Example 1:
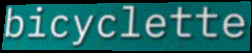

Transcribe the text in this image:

bicyclette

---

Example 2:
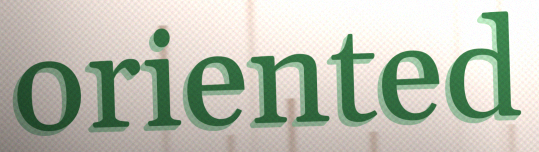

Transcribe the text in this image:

oriented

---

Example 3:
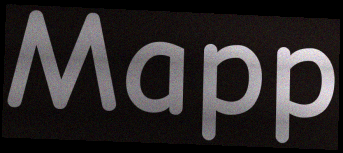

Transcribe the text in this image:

Mapp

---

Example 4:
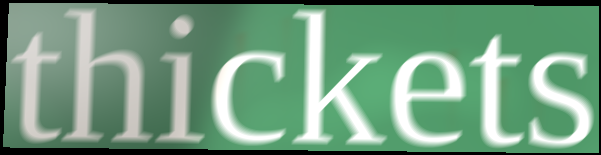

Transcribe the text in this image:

thickets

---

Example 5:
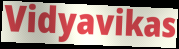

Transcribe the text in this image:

Vidyavikas